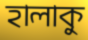
হালাকু